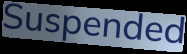
Suspended